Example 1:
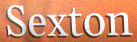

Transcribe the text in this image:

Sexton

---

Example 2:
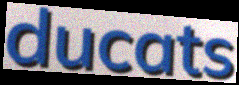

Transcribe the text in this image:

ducats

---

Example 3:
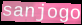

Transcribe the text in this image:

sanjogo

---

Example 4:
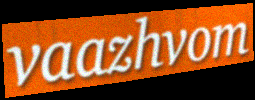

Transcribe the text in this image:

vaazhvom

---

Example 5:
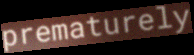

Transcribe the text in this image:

prematurely